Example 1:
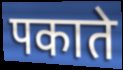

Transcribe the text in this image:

पकाते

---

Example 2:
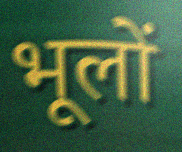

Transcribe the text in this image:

भूलों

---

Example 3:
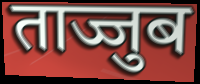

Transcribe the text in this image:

ताज्जुब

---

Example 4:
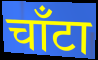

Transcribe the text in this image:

चाँटा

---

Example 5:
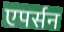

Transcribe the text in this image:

एपर्सन